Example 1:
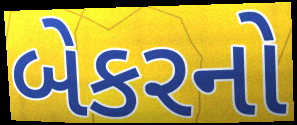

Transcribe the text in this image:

બેકરનો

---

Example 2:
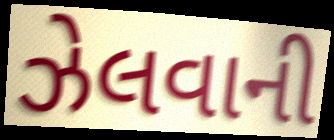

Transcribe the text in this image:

ઝેલવાની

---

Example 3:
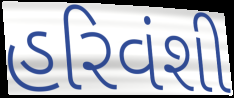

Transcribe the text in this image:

હરિવંશી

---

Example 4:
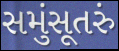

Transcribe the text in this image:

સમુંસૂતરું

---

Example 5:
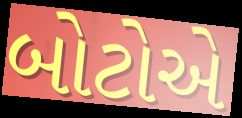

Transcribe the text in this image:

બોટોએ